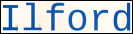
Ilford